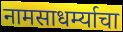
नामसाधर्म्याचा